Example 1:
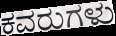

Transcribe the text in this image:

ಕವರುಗಳು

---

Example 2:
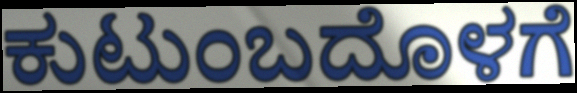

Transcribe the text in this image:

ಕುಟುಂಬದೊಳಗೆ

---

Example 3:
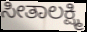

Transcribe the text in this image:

ಸೀತಾಲಕ್ಷ್ಮಿ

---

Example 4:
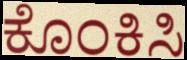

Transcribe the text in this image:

ಕೊಂಕಿಸಿ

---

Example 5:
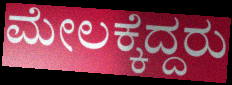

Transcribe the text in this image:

ಮೇಲಕ್ಕೆದ್ದರು